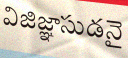
విజిజ్ఞాసుడనై